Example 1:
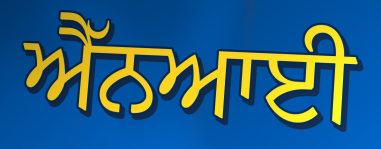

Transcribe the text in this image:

ਐੱਨਆਈ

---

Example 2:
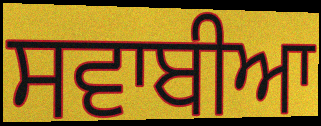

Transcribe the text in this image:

ਸਵਾਬੀਆ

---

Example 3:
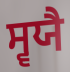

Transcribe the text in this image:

ਸ੍ਵਯੈ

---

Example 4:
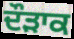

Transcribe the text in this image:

ਦੌੜਾਕ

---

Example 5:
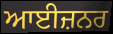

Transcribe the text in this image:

ਆਈਜ਼ਨਰ